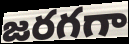
జరగగా